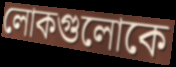
লোকগুলোকে